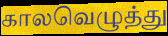
காலவெழுத்து